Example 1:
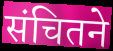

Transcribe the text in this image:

संचितने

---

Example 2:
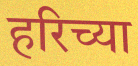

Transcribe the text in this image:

हरिच्या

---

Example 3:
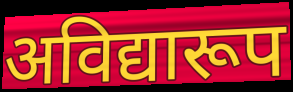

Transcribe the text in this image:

अविद्यारूप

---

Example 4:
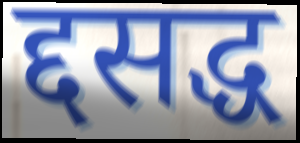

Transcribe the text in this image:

द्दसद्ध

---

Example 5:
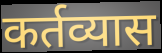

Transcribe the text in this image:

कर्तव्यास